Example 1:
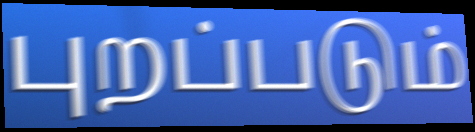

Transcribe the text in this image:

புறப்படும்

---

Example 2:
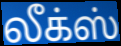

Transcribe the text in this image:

லீக்ஸ்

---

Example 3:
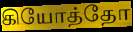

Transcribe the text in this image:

கியோத்தோ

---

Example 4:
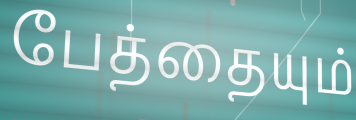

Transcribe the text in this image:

பேத்தையும்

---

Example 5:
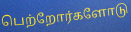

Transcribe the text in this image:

பெற்றோர்களோடு